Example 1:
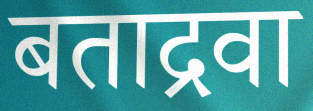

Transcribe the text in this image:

बताद्रवा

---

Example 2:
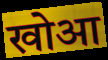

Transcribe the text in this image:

खोआ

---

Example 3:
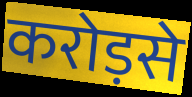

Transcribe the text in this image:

करोड़से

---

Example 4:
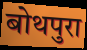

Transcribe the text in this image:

बोथपुरा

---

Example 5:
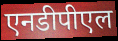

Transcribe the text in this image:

एनडीपीएल